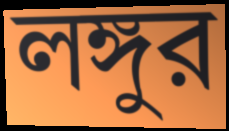
লঙ্গুর